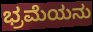
ಭ್ರಮೆಯನು